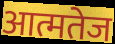
आत्मतेज